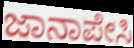
ಜಾನಾಪೇಸಿ